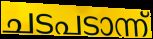
ചടപടാന്ന്